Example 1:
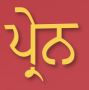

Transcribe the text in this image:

ਪ੍ਰੇਨ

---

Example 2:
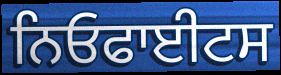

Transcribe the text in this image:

ਨਿਓਫਾਈਟਸ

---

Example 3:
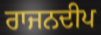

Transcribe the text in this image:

ਰਾਜਨਦੀਪ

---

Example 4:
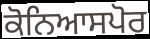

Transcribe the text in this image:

ਕੋਨਿਆਸਪੋਰ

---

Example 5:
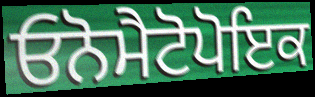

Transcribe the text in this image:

ਓਨੋਮੈਟੋਪੋਇਕ